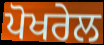
ਪੋਖਰੇਲ